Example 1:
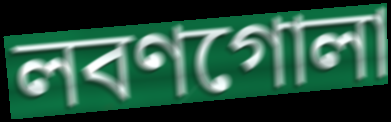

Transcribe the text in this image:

লবণগোলা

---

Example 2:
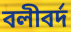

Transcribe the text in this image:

বলীবর্দ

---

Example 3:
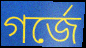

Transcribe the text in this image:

গর্জে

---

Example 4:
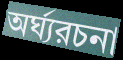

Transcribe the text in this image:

অর্ঘ্যরচনা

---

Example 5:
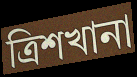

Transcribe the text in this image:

ত্রিশখানা